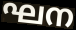
ഘന